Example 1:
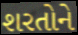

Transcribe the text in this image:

શરતોને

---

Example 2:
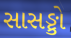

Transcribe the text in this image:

સાસઙ્કો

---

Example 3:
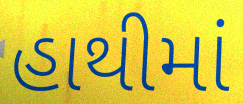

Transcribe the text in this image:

હાથીમાં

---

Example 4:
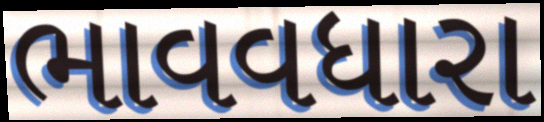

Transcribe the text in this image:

ભાવવધારા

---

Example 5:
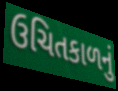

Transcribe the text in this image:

ઉચિતકાળનું